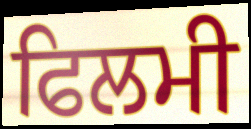
ਫਿਲਮੀ